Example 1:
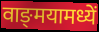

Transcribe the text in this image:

वाङ्‌मयामध्यें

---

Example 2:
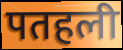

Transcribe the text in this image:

पतहली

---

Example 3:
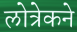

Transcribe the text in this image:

लोत्रेकने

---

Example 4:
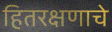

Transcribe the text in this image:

हितरक्षणाचे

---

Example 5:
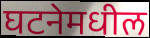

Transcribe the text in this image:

घटनेमधील